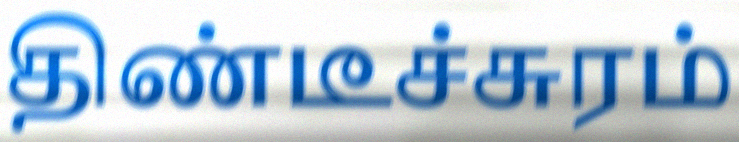
திண்டீச்சுரம்